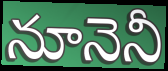
నూనెనీ